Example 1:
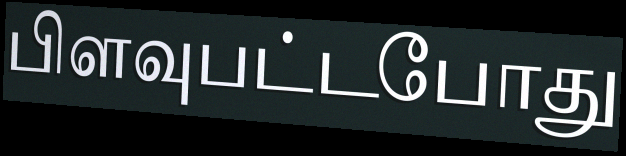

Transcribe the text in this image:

பிளவுபட்டபோது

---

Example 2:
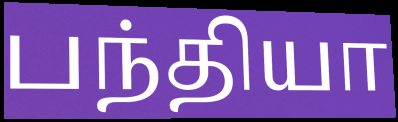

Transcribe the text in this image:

பந்தியா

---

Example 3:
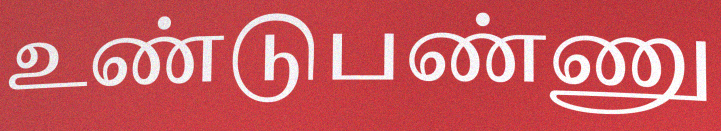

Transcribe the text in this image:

உண்டுபண்ணு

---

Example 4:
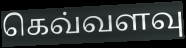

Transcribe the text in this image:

கெவ்வளவு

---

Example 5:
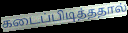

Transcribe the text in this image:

கடைப்பிடித்ததால்